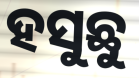
ହସୁଛୁ